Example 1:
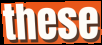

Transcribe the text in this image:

these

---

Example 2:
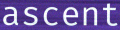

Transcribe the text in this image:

ascent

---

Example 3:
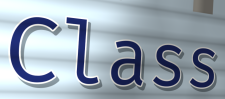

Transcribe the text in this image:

Class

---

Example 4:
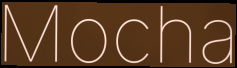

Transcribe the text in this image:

Mocha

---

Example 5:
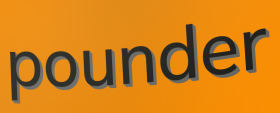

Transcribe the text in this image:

pounder